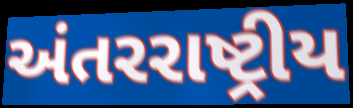
અંતરરાષ્ટ્રીય